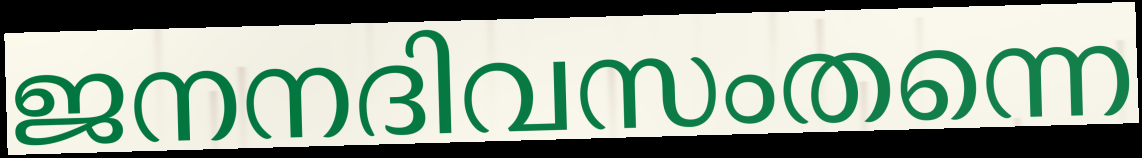
ജനനദിവസംതന്നെ